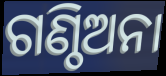
ଗଣ୍ଠିଅନା